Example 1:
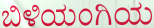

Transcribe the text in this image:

ಬಿಳಿಯಂಗಿಯ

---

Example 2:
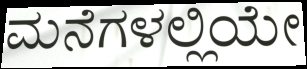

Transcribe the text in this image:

ಮನೆಗಳಲ್ಲಿಯೇ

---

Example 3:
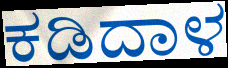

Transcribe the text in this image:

ಕಡಿದಾಳ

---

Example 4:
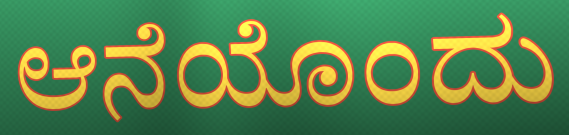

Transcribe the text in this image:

ಆನೆಯೊಂದು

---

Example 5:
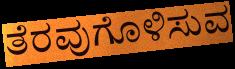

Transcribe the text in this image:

ತೆರವುಗೊಳಿಸುವ